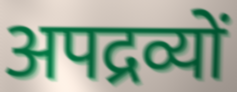
अपद्रव्यों